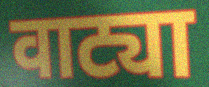
वाट्या